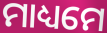
ମାଧ୍ୟମେ